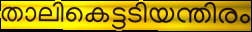
താലികെട്ടടിയന്തിരം